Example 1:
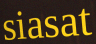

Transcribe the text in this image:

siasat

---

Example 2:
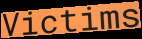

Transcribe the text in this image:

Victims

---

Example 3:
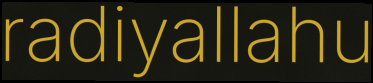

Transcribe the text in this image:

radiyallahu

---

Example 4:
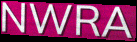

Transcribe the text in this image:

NWRA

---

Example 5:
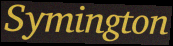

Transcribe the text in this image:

Symington